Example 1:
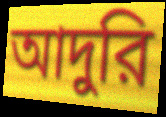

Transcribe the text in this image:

আদুরি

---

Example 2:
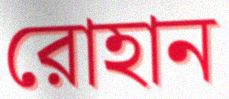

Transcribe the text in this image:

রোহান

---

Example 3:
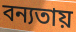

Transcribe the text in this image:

বন্যতায়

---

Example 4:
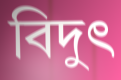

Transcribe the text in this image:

বিদুৎ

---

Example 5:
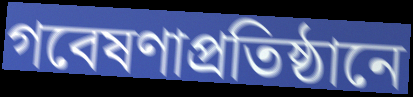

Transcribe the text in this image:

গবেষণাপ্রতিষ্ঠানে